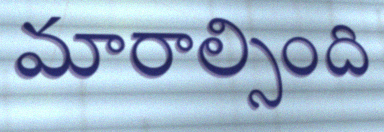
మారాల్సింది